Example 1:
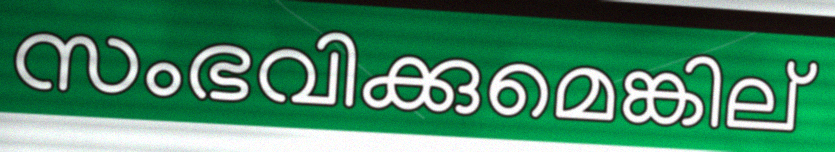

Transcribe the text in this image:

സംഭവിക്കുമെങ്കില്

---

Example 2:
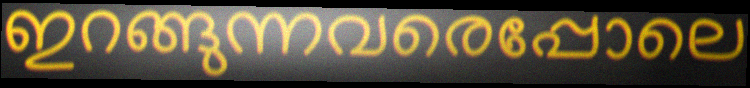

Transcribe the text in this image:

ഇറങ്ങുന്നവരെപ്പോലെ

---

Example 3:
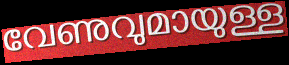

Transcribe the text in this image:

വേണുവുമായുള്ള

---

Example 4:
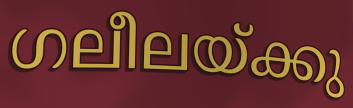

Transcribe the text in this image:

ഗലീലയ്ക്കു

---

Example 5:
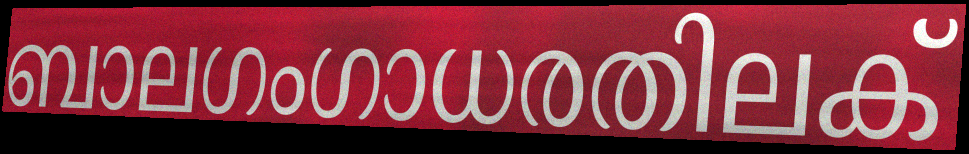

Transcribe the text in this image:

ബാലഗംഗാധരതിലക്